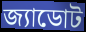
জ্যাডোট